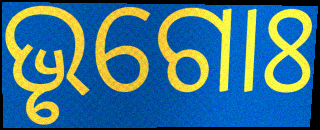
ଭୃଗୋଃ